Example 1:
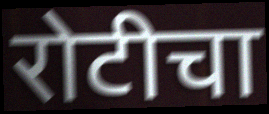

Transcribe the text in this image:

रोटीचा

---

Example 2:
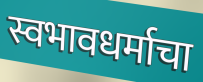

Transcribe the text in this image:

स्वभावधर्माचा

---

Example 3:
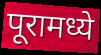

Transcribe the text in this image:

पूरामध्ये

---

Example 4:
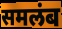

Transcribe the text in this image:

समलंब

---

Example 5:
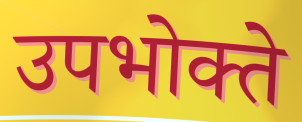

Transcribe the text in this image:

उपभोक्ते